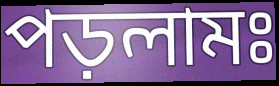
পড়লামঃ